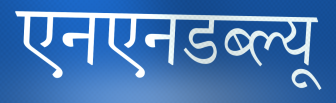
एनएनडब्ल्यू